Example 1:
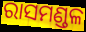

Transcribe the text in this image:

ରାସମଣ୍ଡଳ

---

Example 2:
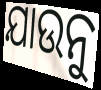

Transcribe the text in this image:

ଯାଉନୁ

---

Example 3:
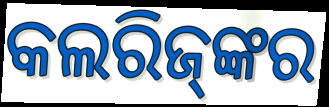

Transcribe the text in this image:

କଲରିଜ୍‌ଙ୍କର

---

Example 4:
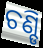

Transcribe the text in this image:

ଚଣ୍ଡି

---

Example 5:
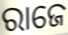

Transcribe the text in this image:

ରାଜେ